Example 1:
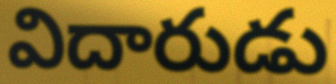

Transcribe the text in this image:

విదారుడు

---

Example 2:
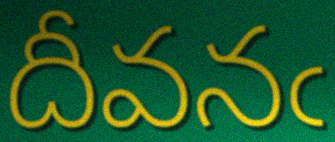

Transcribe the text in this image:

దీవనఁ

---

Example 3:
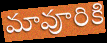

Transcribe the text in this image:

మావూరికి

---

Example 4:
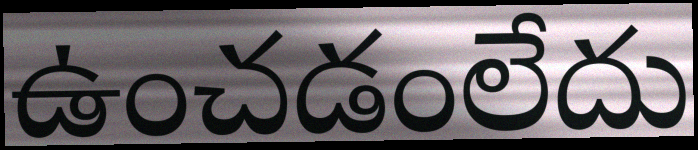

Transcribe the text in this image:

ఉంచడంలేదు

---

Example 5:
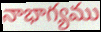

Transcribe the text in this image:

నాభాగ్యము